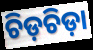
ଚିଡ଼ଚିଡ଼ା